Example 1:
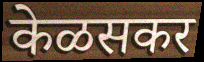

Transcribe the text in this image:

केळसकर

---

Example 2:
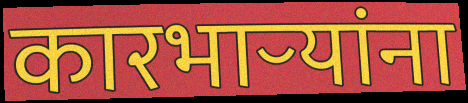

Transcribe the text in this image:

कारभाऱ्यांना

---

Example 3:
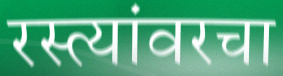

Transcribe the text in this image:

रस्त्यांवरचा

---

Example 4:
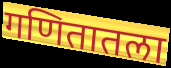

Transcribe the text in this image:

गणितातला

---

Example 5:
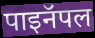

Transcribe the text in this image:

पाइनॅपल